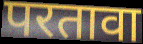
परतावा